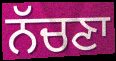
ਨੱਚਣਾ